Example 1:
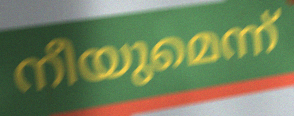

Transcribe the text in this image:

നീയുമെന്ന്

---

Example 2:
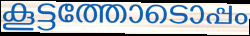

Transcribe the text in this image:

കൂട്ടത്തോടൊപ്പം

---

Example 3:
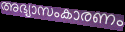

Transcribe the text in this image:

അഭ്യാസംകാരണം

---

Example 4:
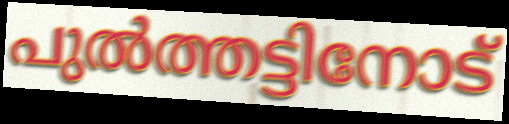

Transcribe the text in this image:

പുൽത്തട്ടിനോട്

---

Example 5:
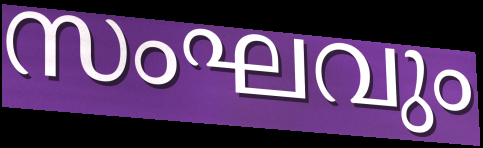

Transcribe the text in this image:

സംഘവും